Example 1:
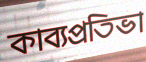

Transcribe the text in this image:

কাব্যপ্রতিভা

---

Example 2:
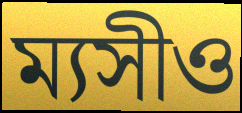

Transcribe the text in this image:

ম্যসীও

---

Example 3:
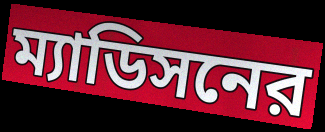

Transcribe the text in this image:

ম্যাডিসনের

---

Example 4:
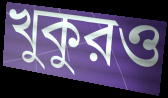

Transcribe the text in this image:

খুকুরও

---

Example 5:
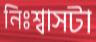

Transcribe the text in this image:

নিঃশ্বাসটা